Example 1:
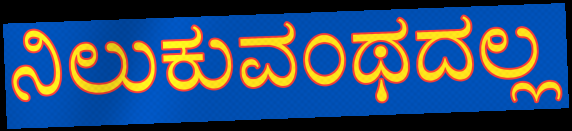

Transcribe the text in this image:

ನಿಲುಕುವಂಥದಲ್ಲ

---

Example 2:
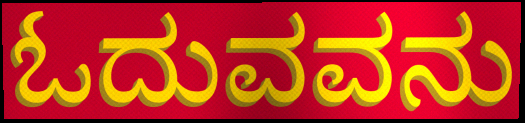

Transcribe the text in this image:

ಓದುವವನು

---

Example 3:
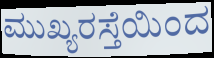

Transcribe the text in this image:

ಮುಖ್ಯರಸ್ತೆಯಿಂದ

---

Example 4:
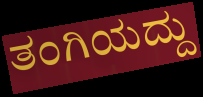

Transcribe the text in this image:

ತಂಗಿಯದ್ದು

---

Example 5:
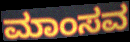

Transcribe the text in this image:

ಮಾಂಸವ